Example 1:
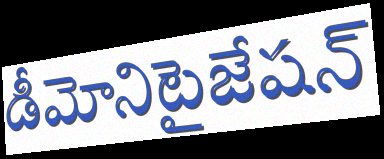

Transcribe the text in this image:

డీమోనిటైజేషన్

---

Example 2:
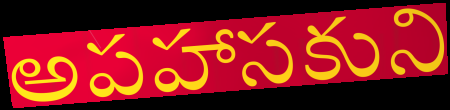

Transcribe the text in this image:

అపహాసకుని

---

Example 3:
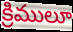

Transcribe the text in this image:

క్రిములూ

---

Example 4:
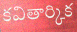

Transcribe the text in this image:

కవితార్కిక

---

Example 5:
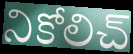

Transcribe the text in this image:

నికోలిచ్